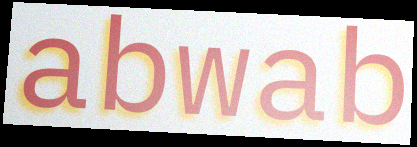
abwab